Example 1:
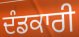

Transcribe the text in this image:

ਦੰਡਕਾਰੀ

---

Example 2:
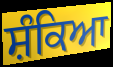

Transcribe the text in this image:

ਸ਼ੰਕਿਆ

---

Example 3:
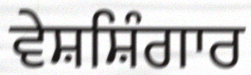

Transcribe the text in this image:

ਵੇਸ਼ਸ਼ਿੰਗਾਰ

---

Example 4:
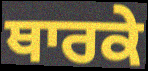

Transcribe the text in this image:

ਥਾਰਕੇ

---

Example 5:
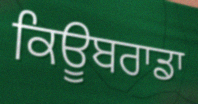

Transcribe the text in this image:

ਕਿਊਬਰਾਡਾ